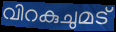
വിറകുചുമട്